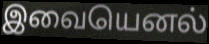
இவையெனல்